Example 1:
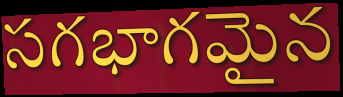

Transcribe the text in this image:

సగభాగమైన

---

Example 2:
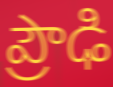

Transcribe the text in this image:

ప్రౌఢి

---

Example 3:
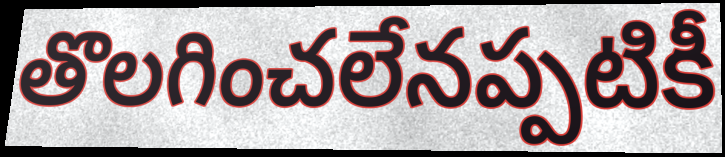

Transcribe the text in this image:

తొలగించలేనప్పటికీ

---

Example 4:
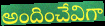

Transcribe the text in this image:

అందించేవిగా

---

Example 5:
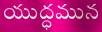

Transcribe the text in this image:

యుద్ధమున